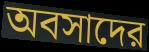
অবসাদের